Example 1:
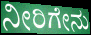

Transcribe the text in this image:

ನೀರಿಗೇನು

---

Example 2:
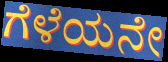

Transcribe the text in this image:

ಗೆಳೆಯನೇ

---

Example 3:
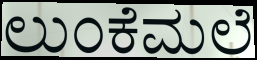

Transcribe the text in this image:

ಲುಂಕೆಮಲೆ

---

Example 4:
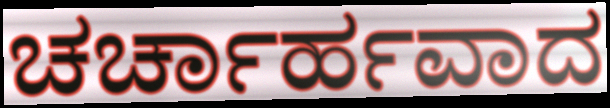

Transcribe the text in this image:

ಚರ್ಚಾರ್ಹವಾದ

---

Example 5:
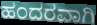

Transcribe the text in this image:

ಹಂದರವಾಗಿ